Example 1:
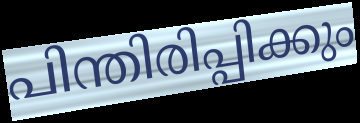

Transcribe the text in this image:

പിന്തിരിപ്പിക്കും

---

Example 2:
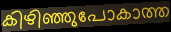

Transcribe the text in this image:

കിഴിഞ്ഞുപോകാത്ത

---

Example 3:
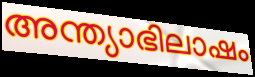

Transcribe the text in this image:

അന്ത്യാഭിലാഷം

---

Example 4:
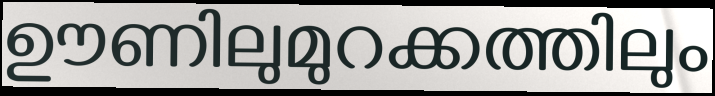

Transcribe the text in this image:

ഊണിലുമുറക്കത്തിലും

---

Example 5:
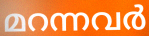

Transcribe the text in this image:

മറന്നവർ